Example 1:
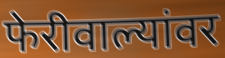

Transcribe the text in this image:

फेरीवाल्यांवर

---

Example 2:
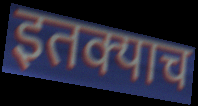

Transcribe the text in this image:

इतक्याच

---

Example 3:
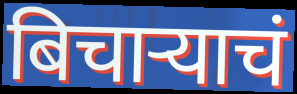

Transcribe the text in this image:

बिचाऱ्याचं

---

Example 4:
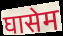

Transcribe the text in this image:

घासेम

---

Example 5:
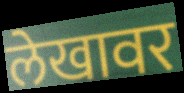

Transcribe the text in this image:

लेखावर